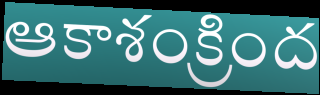
ఆకాశంక్రింద